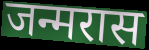
जन्मरास